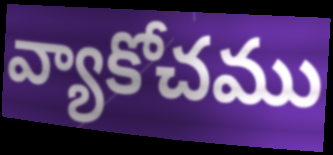
వ్యాకోచము